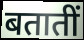
बतातीं